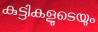
കുട്ടികളുടെയും